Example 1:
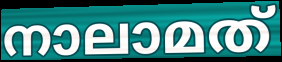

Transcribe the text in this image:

നാലാമത്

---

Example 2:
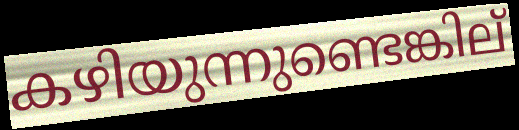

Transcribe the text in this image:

കഴിയുന്നുണ്ടെങ്കില്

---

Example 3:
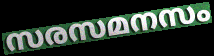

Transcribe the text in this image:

സരസമനസം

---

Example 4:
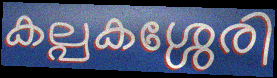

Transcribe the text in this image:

കല്പകശ്ശേരി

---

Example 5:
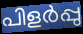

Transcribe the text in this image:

പിളർപ്പു